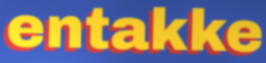
entakke